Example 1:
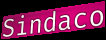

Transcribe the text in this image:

Sindaco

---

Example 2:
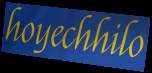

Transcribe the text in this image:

hoyechhilo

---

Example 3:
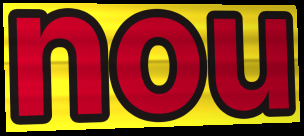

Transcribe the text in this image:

nou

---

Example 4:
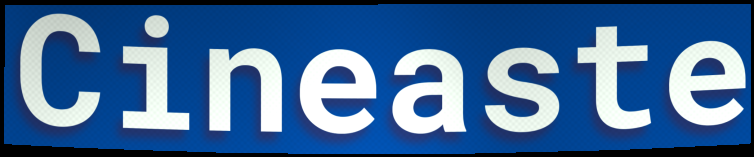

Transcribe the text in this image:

Cineaste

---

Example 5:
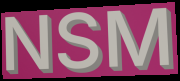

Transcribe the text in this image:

NSM